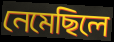
নেমেছিলে